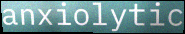
anxiolytic